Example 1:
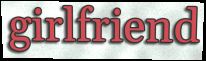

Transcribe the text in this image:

girlfriend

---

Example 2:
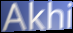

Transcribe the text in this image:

Akhi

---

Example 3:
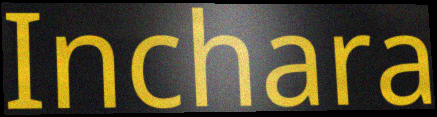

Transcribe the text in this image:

Inchara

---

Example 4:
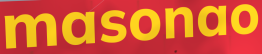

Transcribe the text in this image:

masonao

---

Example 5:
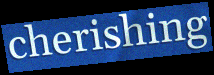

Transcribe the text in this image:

cherishing